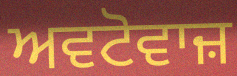
ਅਵਟੋਵਾਜ਼